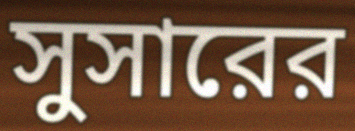
সুসারের